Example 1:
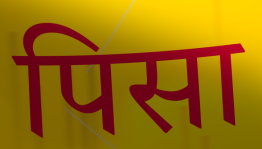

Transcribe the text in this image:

पिसा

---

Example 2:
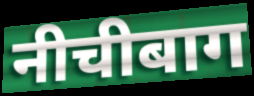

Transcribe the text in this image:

नीचीबाग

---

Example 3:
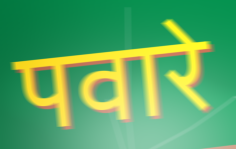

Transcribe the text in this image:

पवारे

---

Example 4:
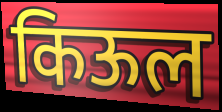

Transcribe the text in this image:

किऊल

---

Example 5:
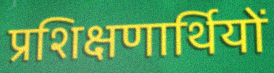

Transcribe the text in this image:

प्रशिक्षणार्थियों